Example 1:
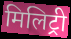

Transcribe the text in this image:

मिलिट्री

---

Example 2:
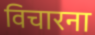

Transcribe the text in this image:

विचारना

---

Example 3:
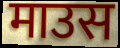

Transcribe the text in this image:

माउस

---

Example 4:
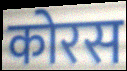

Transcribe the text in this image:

कोरस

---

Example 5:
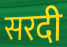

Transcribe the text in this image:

सरदी